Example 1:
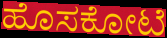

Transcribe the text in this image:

ಹೊಸಕೋಟೆ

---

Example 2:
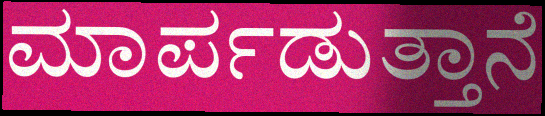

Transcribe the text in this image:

ಮಾರ್ಪಡುತ್ತಾನೆ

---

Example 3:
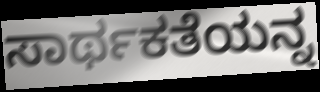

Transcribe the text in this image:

ಸಾರ್ಥಕತೆಯನ್ನ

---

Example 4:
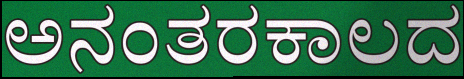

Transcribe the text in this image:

ಅನಂತರಕಾಲದ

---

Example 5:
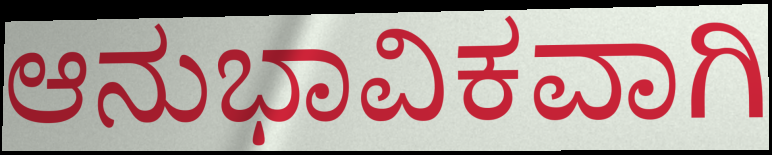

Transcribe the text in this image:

ಆನುಭಾವಿಕವಾಗಿ